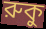
রুকু